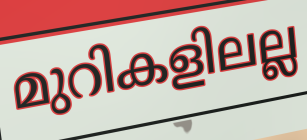
മുറികളിലല്ല